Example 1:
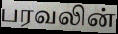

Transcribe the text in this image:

பரவலின்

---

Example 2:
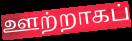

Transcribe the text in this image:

ஊற்றாகப்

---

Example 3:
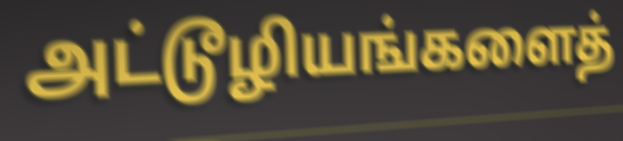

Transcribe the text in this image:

அட்டூழியங்களைத்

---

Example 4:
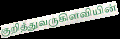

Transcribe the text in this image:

குறித்துவருகிளவியின்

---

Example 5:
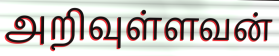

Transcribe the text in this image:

அறிவுள்ளவன்